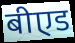
बीएड